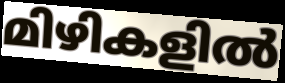
മിഴികളിൽ